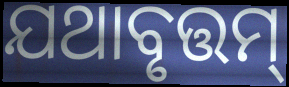
ଯଥାବୃତ୍ତମ୍